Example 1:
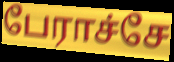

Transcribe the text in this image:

பேராச்சே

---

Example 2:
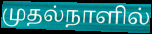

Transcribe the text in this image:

முதல்நாளில்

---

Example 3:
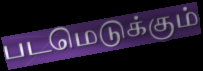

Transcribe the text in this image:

படமெடுக்கும்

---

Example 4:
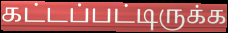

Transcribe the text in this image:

கட்டப்பட்டிருக்க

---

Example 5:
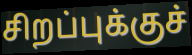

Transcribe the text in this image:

சிறப்புக்குச்